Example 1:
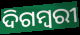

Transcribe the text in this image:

ଦିଗମ୍ୱରୀ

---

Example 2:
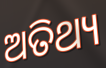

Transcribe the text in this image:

ଅତିଥ୍ୟ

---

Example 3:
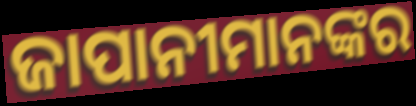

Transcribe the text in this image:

ଜାପାନୀମାନଙ୍କର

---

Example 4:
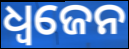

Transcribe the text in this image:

ଧ୍ଵଜେନ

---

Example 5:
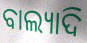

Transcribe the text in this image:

ବାଲ୍ୟାଦି